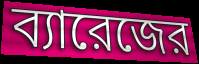
ব্যারেজের